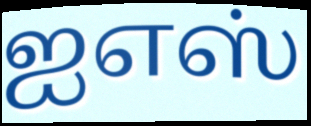
ஐஎஸ்